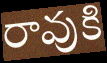
రావుకి